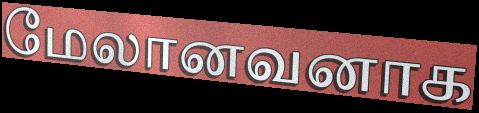
மேலானவனாக